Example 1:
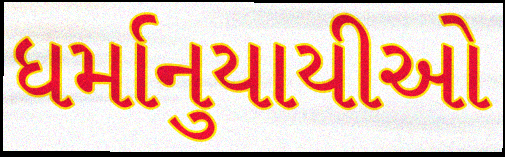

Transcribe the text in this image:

ધર્માનુયાયીઓ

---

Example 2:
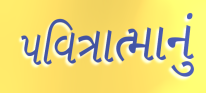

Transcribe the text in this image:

પવિત્રાત્માનું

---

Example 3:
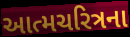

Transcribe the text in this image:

આત્મચરિત્રના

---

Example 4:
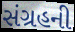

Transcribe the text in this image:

સંગ્રહની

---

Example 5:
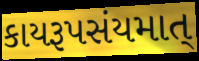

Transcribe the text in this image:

કાયરૂપસંયમાત્